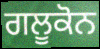
ਗਲੂਕੋਨ